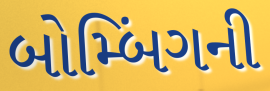
બોમ્બિંગની